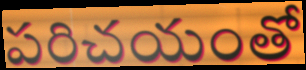
పరిచయంతో